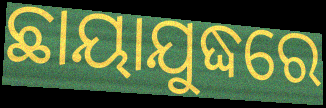
ଛାୟାଯୁଦ୍ଧରେ